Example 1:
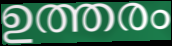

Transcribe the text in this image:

ഉത്തരം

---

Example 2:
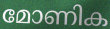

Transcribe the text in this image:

മോണിക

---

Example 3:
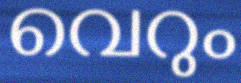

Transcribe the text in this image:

വെറും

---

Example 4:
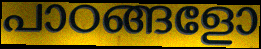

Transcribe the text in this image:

പാഠങ്ങളോ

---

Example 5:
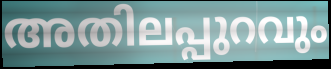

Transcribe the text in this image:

അതിലപ്പുറവും